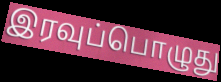
இரவுப்பொழுது